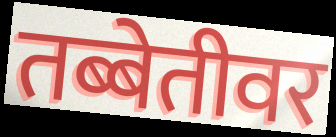
तब्बेतीवर